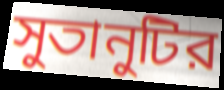
সুতানুটির